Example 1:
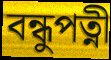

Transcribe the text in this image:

বন্ধুপত্নী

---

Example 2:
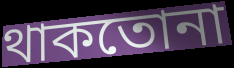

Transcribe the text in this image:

থাকতোনা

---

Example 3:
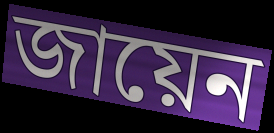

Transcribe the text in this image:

জায়েন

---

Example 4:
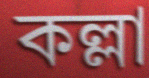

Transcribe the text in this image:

কল্লা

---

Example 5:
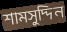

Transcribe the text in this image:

শামসুদ্দিন